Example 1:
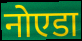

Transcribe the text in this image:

नोएडा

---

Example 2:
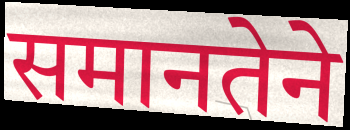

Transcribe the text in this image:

समानतेने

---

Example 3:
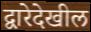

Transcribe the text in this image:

द्वारेदेखील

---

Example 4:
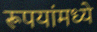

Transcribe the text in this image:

रूपयांमध्ये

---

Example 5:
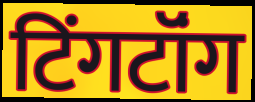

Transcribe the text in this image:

टिंगटॉंग